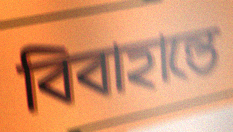
বিবাহান্তে